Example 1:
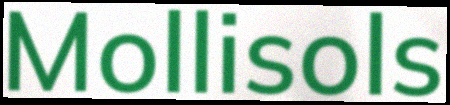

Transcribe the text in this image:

Mollisols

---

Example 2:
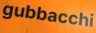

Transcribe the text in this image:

gubbacchi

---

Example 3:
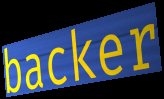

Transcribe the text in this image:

backer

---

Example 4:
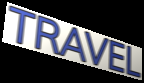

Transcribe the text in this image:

TRAVEL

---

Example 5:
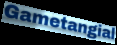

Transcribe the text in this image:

Gametangial